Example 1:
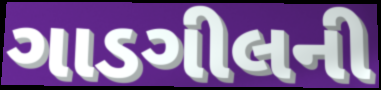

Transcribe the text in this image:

ગાડગીલની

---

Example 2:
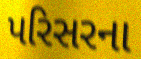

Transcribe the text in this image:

પરિસરના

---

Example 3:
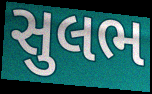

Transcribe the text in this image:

સુલભ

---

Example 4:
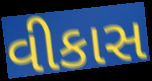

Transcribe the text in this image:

વીકાસ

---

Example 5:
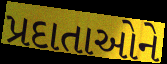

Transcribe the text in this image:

પ્રદાતાઓને